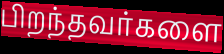
பிறந்தவர்களை